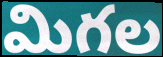
మిగల